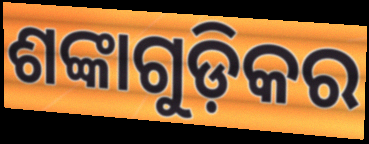
ଶଙ୍କାଗୁଡ଼ିକର